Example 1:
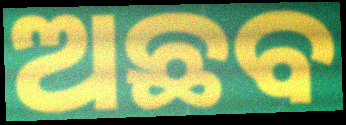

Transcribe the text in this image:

ଅଛବ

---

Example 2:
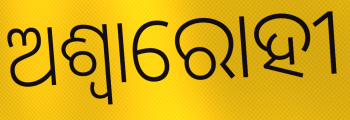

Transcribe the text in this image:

ଅଶ୍ଵାରୋହୀ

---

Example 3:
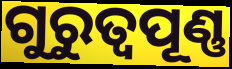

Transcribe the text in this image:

ଗୁରୁତ୍ବପୂଣ୍ଣ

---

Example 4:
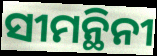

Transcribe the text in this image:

ସୀମନ୍ଥିନୀ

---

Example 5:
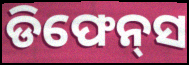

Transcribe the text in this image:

ଡିଫେନ୍‌ସ